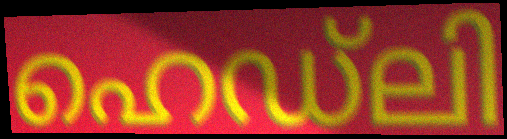
ഹെഡ്ലി